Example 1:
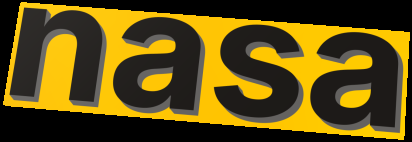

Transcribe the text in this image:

nasa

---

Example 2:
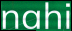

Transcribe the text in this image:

nahi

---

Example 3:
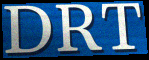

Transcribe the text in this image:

DRT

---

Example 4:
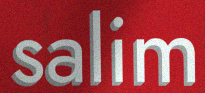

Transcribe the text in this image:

salim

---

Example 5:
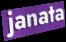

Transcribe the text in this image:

janata